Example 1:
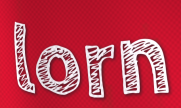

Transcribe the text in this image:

lorn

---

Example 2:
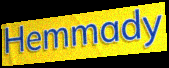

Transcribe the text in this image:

Hemmady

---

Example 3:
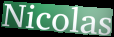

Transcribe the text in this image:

Nicolas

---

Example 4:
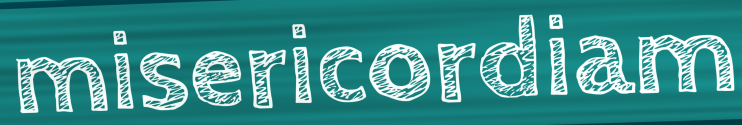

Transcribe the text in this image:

misericordiam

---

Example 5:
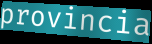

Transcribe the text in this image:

provincia